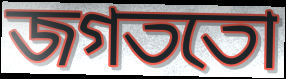
জগততো